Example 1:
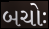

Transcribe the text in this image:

બચોઃ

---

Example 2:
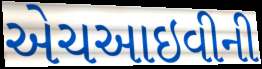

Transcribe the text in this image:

એચઆઇવીની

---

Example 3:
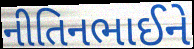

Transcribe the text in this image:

નીતિનભાઈને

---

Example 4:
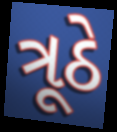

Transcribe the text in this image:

ત્રૂઠે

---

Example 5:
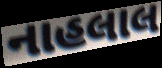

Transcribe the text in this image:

નાહલાલ